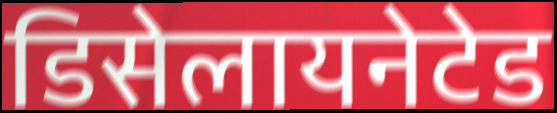
डिसेलायनेटेड